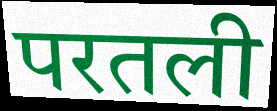
परतली